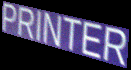
PRINTER